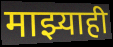
माझ्याही